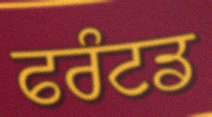
ਫਰੰਟਡ